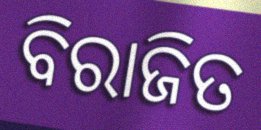
ବିରାଜିତ